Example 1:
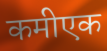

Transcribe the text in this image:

कमीएक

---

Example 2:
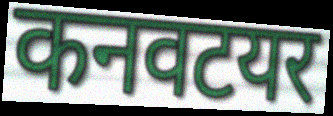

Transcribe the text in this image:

कनवटयर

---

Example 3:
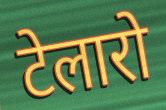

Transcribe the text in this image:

टेलारो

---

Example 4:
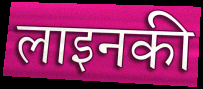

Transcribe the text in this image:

लाइनकी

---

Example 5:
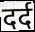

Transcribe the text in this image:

दर्द